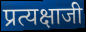
प्रत्यक्षाजी